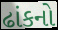
ઢાંકનો